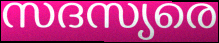
സദസ്യരെ